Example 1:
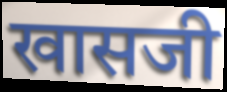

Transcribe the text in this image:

खासजी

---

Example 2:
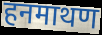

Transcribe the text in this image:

हनमाथण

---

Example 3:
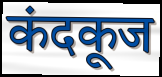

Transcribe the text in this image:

कंदकूज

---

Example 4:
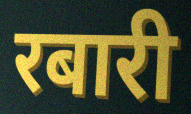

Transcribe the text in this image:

रबारी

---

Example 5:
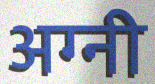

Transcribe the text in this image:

अग्नी